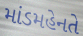
માંડમહેનતે